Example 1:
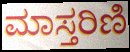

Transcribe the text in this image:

ಮಾಸ್ತರಿಣಿ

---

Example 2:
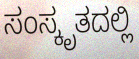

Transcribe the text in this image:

ಸಂಸ್ಕೃತದಲ್ಲಿ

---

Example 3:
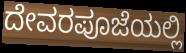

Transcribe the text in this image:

ದೇವರಪೂಜೆಯಲ್ಲಿ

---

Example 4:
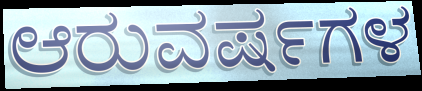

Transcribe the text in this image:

ಆರುವರ್ಷಗಳ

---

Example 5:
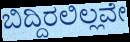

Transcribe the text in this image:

ಬಿದ್ದಿರಲಿಲ್ಲವೇ